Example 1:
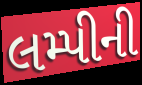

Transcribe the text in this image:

લમ્પીની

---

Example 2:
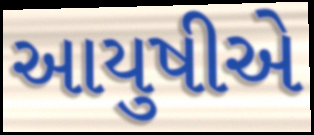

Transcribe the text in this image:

આયુષીએ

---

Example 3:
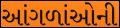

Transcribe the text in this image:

આંગળાંઓની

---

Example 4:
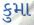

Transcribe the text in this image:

કુમા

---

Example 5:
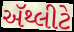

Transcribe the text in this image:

ઍથ્લીટે